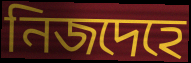
নিজদেহে